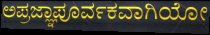
ಅಪ್ರಜ್ಞಾಪೂರ್ವಕವಾಗಿಯೋ